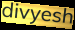
divyesh